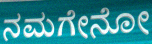
ನಮಗೇನೋ